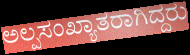
ಅಲ್ಪಸಂಖ್ಯಾತರಾಗಿದ್ದರು